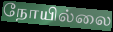
நோயில்லை